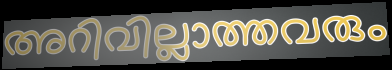
അറിവില്ലാത്തവരും